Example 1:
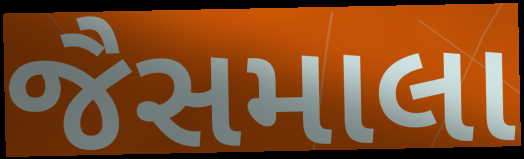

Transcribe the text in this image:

જૈસમાલા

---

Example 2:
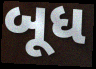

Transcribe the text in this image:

બૂધ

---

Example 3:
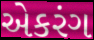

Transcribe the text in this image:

એકરંગ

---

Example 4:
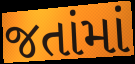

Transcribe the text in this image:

જતાંમાં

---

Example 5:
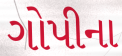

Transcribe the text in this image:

ગોપીના